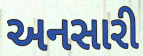
અનસારી